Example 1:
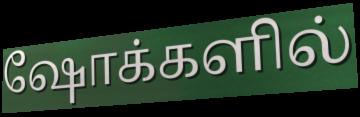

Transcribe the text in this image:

ஷோக்களில்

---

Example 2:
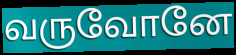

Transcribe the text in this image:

வருவோனே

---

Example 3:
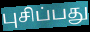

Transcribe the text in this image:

புசிப்பது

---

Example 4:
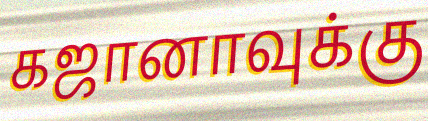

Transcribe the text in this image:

கஜானாவுக்கு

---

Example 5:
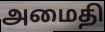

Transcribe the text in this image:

அமைதி